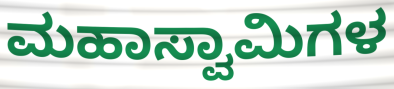
ಮಹಾಸ್ವಾಮಿಗಳ